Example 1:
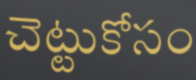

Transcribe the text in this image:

చెట్టుకోసం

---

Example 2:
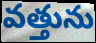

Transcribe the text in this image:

వత్తును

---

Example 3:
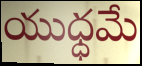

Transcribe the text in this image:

యుధ్ధమే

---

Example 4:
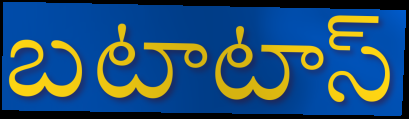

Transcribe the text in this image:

బటాటాస్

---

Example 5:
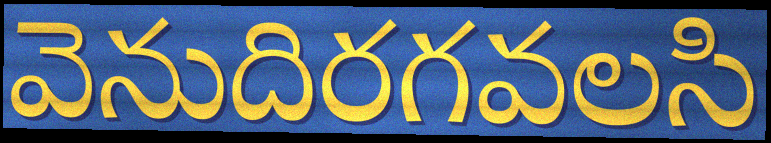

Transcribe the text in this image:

వెనుదిరగవలసి